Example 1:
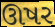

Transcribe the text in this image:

ઊષર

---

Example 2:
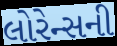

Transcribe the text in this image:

લોરેન્સની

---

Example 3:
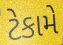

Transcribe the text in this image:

ટેકામે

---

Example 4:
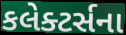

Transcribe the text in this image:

કલેક્ટર્સના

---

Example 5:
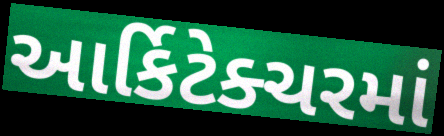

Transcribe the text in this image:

આર્કિટેક્ચરમાં